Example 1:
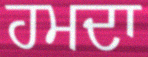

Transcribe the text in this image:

ਹਮਦਾ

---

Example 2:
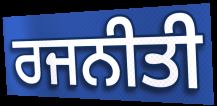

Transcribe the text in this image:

ਰਜਨੀਤੀ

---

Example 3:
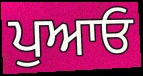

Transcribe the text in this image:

ਪੁਆਓ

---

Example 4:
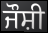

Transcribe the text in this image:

ਜੌਸ਼ੀ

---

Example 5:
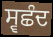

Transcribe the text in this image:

ਸ੍ਵਛੰਦ